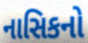
નાસિકનો